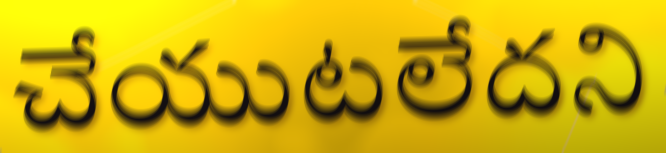
చేయుటలేదని